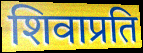
शिवाप्रति